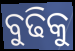
ବୁଢିକୁ